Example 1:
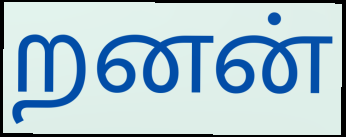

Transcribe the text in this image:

றனன்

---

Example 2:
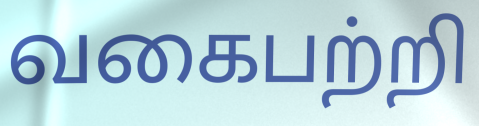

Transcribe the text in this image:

வகைபற்றி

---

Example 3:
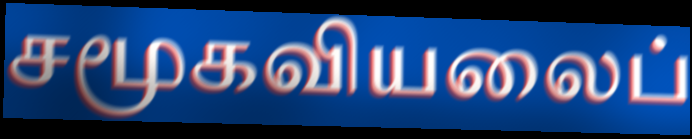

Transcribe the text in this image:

சமூகவியலைப்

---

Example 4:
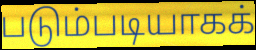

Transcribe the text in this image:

படும்படியாகக்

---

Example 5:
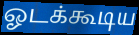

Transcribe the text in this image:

ஓடக்கூடிய